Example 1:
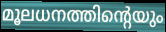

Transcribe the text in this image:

മൂലധനത്തിന്റെയും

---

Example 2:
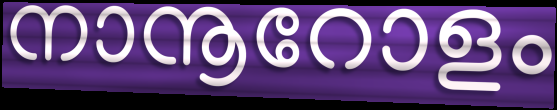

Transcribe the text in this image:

നാനൂറോളം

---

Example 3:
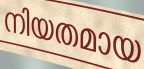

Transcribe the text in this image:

നിയതമായ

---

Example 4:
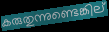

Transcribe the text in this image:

കരുതുന്നുണ്ടെങ്കില്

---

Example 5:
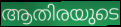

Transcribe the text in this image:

ആതിരയുടെ